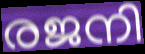
രജനി